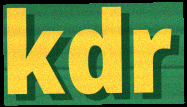
kdr